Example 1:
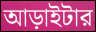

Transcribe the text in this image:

আড়াইটার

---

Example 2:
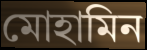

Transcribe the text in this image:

মোহামিন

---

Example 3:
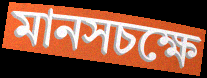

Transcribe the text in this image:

মানসচক্ষে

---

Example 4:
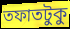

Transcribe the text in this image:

তফাতটুকু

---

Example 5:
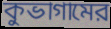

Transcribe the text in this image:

কুভাগামের